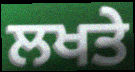
ਲਖਤੇ